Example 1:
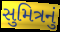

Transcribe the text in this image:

સુમિત્રનું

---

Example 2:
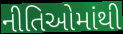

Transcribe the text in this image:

નીતિઓમાંથી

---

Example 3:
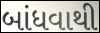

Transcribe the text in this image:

બાંધવાથી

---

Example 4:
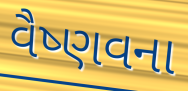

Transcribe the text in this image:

વૈષ્ણવના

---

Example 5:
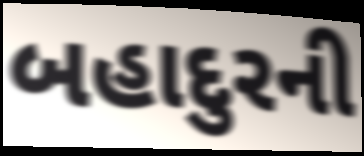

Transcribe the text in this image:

બહાદુરની